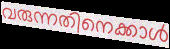
വരുന്നതിനെക്കാൾ